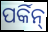
ପର୍କିନ୍